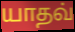
யாதவ்